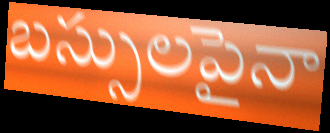
బస్సులపైనా